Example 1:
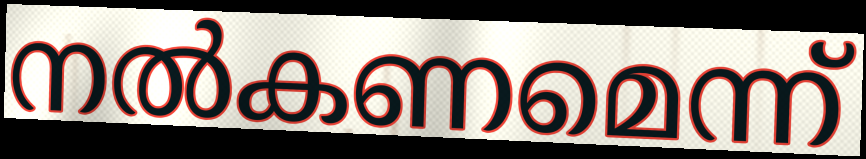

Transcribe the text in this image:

നൽകണമെന്ന്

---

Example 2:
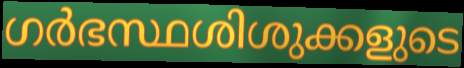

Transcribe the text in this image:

ഗർഭസ്ഥശിശുക്കളുടെ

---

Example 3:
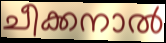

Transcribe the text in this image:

ചീക്കനാൽ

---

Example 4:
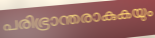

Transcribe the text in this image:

പരിഭ്രാന്തരാകുകയും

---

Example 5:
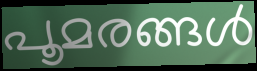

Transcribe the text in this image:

പൂമരങ്ങൾ